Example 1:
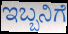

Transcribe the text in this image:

ಇಬ್ಬನಿಗೆ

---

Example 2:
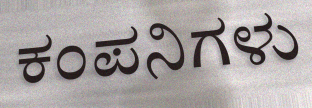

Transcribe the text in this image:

ಕಂಪನಿಗಳು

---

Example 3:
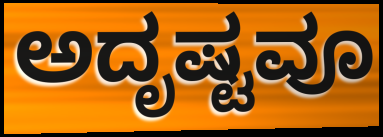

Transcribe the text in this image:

ಅದೃಷ್ಟವೂ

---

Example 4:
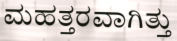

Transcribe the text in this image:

ಮಹತ್ತರವಾಗಿತ್ತು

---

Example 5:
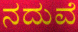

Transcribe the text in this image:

ನದುವೆ